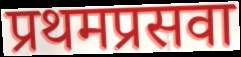
प्रथमप्रसवा